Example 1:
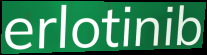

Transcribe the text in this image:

erlotinib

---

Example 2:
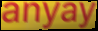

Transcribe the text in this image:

anyay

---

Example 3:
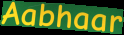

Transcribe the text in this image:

Aabhaar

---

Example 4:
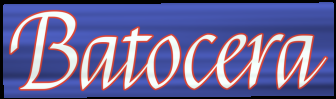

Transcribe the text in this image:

Batocera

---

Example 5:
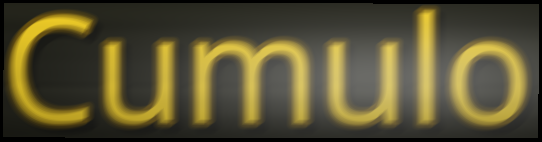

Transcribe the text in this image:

Cumulo